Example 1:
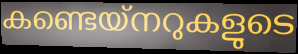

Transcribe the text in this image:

കണ്ടെയ്നറുകളുടെ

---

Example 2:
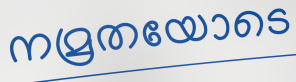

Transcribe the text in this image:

നമ്രതയോടെ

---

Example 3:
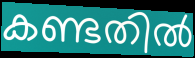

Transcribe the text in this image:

കണ്ടതിൽ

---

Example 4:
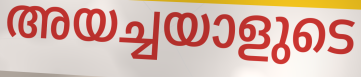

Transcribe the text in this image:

അയച്ചയാളുടെ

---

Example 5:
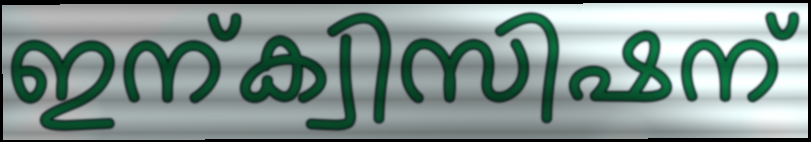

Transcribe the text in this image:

ഇന്ക്വിസിഷന്